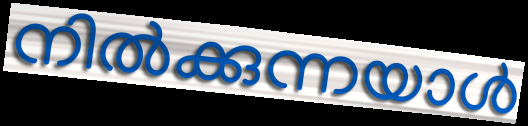
നിൽക്കുന്നയാൾ